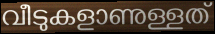
വീടുകളാണുള്ളത്